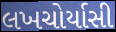
લખચોર્યાસી